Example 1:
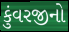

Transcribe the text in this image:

કુંવરજીનો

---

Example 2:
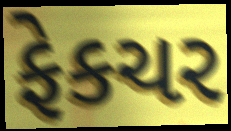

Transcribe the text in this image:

ફેકચર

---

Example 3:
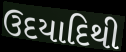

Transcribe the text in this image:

ઉદયાદિથી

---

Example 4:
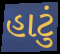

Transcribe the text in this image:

હાટું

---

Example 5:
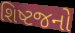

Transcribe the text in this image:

શિષ્ટજનો